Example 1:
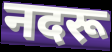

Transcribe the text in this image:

नदरू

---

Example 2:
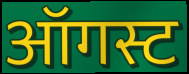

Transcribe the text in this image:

ऑगस्ट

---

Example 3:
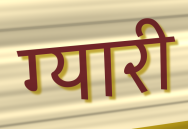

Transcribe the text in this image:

ग्यारी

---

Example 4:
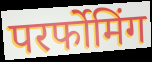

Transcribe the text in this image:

परर्फोमिंग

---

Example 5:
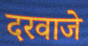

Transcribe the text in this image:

दरवाजे